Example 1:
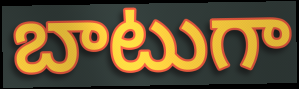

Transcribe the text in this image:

బాటుగా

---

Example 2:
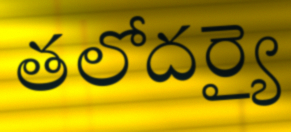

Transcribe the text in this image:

తలోదర్యై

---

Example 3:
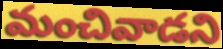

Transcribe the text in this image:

మంచివాడని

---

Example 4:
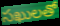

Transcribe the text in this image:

సఖులతో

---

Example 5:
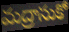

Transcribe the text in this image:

మద్రాసుకో